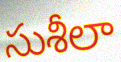
సుశీలా